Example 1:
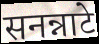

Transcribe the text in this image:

सनन्नाटे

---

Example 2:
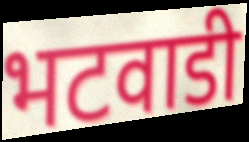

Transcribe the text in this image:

भटवाडी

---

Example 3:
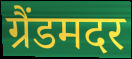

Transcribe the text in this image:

ग्रैंडमदर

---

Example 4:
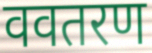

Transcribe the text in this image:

ववतरण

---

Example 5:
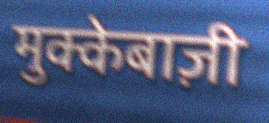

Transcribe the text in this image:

मुक्केबाज़ी